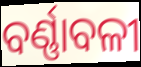
ବର୍ଣ୍ଣାବଳୀ